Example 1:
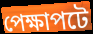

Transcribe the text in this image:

পেক্ষাপটে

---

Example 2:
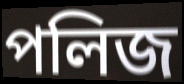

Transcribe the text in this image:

পলিজ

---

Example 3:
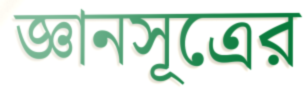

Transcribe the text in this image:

জ্ঞানসূত্রের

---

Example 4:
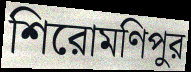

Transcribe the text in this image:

শিরোমণিপুর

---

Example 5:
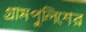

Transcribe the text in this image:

গ্রামপুলিশের